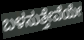
ಬಳಸುತ್ತೇವೆಯೇ